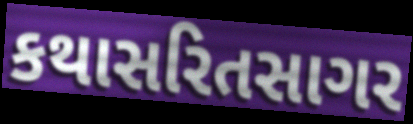
કથાસરિતસાગર